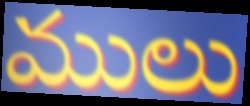
ములు